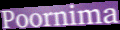
Poornima